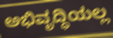
ಅಭಿವೃದ್ಧಿಯಲ್ಲ